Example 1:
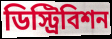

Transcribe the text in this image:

ডিস্ট্রিবিশন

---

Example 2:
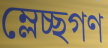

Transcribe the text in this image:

ম্লেচ্ছগণ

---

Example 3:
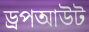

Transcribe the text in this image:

ড্রপআউট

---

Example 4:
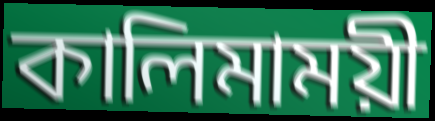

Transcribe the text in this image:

কালিমাময়ী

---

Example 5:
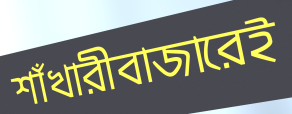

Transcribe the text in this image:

শাঁখারীবাজারেই